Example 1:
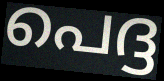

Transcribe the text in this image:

പെദ്ദ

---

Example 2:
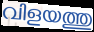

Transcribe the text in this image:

വിളയത്തു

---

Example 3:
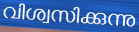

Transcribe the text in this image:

വിശ്വസിക്കുന്നു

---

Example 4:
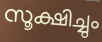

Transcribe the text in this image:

സൂക്ഷിച്ചും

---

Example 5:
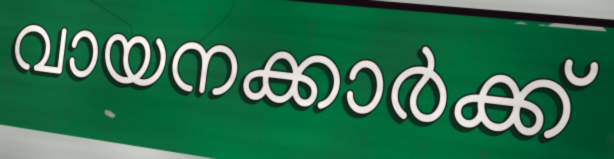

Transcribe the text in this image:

വായനക്കാർക്ക്